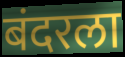
बंदरला